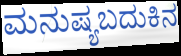
ಮನುಷ್ಯಬದುಕಿನ